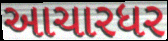
આચારધર